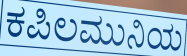
ಕಪಿಲಮುನಿಯ